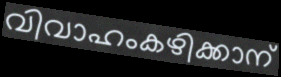
വിവാഹംകഴിക്കാന്